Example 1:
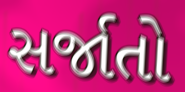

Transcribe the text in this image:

સર્જાતો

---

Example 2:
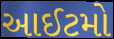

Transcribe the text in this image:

આઈટમો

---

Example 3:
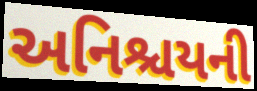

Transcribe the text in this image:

અનિશ્ચયની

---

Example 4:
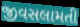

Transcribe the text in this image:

જીવસલામતી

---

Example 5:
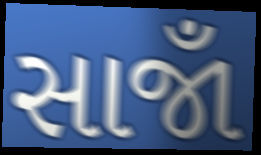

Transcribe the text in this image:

સાજાઁ